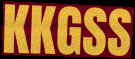
KKGSS